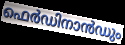
ഫെർഡിനാൻഡും